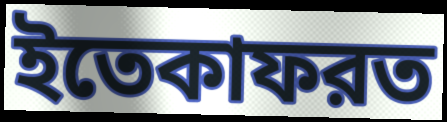
ইতেকাফরত